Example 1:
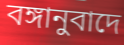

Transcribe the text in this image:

বঙ্গানুবাদে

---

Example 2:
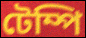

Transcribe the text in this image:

টেম্পি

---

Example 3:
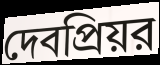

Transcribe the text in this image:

দেবপ্রিয়র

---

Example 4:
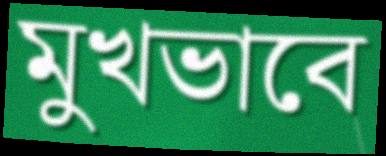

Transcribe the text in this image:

মুখভাবে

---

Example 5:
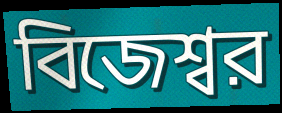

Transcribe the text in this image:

বিজেশ্বর